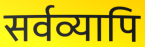
सर्वव्यापि